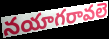
నయాగరావలె